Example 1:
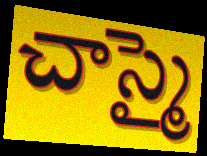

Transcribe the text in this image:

చాస్మై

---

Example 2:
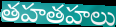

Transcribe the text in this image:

తహతహలు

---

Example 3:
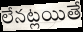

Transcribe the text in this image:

లేనట్లయితే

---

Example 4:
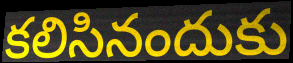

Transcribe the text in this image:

కలిసినందుకు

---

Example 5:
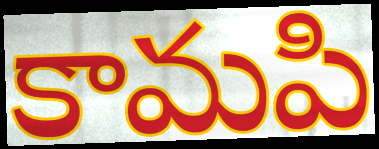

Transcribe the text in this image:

కామపి